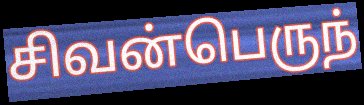
சிவன்பெருந்